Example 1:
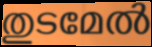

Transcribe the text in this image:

തുടമേൽ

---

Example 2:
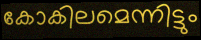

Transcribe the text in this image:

കോകിലമെന്നിട്ടും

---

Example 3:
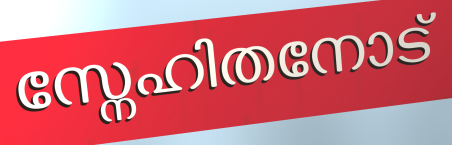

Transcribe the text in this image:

സ്നേഹിതനോട്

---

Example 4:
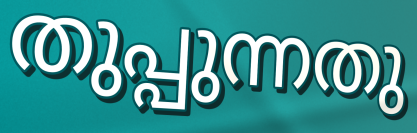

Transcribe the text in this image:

തുപ്പുന്നതു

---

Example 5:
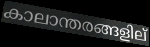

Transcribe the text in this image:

കാലാന്തരങ്ങളില്